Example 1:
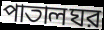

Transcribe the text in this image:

পাতালঘর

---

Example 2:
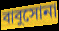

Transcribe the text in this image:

বাবুসোনা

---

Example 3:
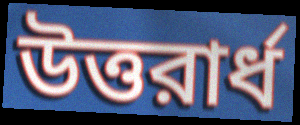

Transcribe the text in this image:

উত্তরার্ধ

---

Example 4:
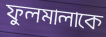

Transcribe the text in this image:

ফুলমালাকে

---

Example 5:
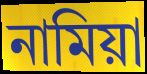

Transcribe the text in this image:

নামিয়া